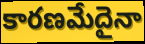
కారణమేదైనా